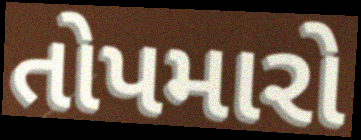
તોપમારો